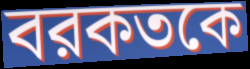
বরকতকে